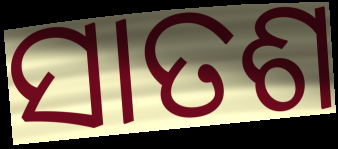
ସାତଶ